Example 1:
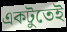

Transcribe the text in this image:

একটুতেই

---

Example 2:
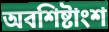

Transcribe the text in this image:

অবশিষ্টাংশ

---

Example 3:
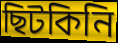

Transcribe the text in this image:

ছিটকিনি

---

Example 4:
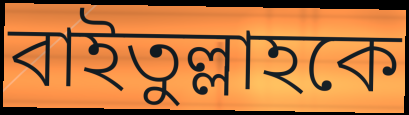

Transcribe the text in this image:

বাইতুল্লাহকে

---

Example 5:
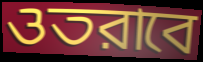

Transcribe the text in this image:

ওতরাবে